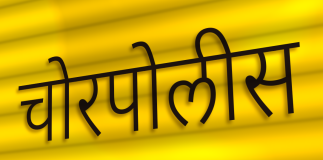
चोरपोलीस